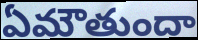
ఏమౌతుందా